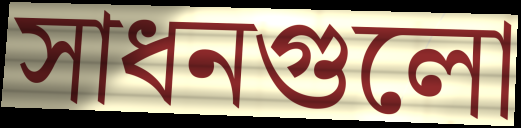
সাধনগুলো